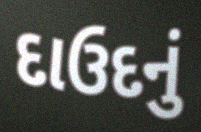
દાઉદનું